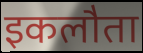
इकलौता